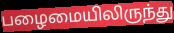
பழைமையிலிருந்து